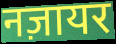
नज़ायर